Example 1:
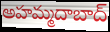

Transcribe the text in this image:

అహమ్మదాబాద్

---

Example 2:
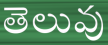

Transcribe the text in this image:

తెలువు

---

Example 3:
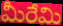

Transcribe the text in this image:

మీరేమి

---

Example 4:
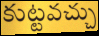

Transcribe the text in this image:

కుట్టవచ్చు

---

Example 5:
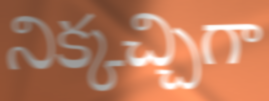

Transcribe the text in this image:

నిక్కచ్చిగా